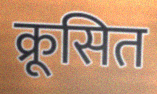
क्रूसित